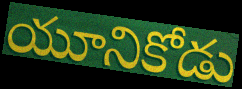
యూనికోడు